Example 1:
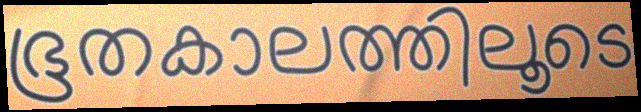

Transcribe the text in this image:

ഭൂതകാലത്തിലൂടെ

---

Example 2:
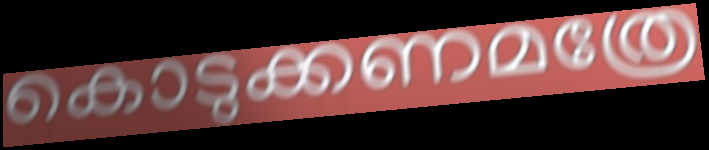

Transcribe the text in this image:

കൊടുക്കണമത്രേ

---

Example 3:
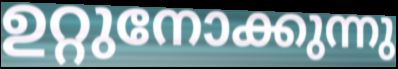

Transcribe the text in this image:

ഉറ്റുനോക്കുന്നു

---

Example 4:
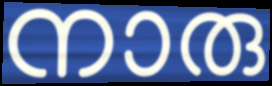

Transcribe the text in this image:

നാരു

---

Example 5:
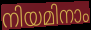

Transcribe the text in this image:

നിയമിനാം